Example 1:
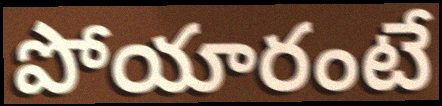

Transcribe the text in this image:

పోయారంటే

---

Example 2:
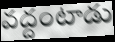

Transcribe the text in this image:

వద్దంటాడు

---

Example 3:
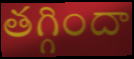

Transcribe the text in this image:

తగ్గిందా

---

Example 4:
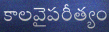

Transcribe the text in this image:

కాలవైపరీత్యం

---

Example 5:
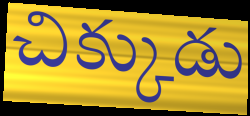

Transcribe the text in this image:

చిక్కుడు